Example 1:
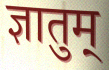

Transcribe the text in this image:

ज्ञातुम्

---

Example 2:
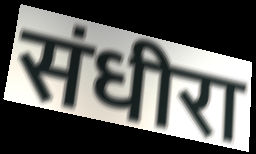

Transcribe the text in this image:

संधीरा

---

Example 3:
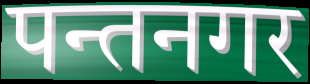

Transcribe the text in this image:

पन्तनगर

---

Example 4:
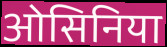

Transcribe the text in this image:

ओसिनिया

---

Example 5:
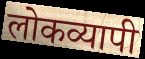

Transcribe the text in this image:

लोकव्यापी